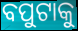
ବପୁଟାକୁ